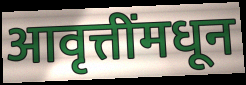
आवृत्तींमधून